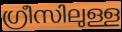
ഗ്രീസിലുള്ള